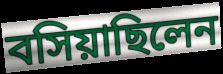
বসিয়াছিলেন